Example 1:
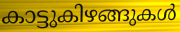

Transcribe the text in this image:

കാട്ടുകിഴങ്ങുകൾ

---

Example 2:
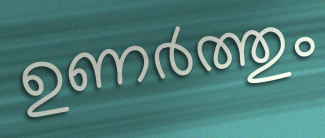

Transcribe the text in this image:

ഉണർത്തും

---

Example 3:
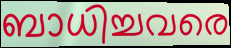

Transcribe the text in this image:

ബാധിച്ചവരെ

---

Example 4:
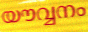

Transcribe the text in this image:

യൗവ്വനം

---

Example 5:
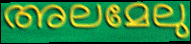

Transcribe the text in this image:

അലമേലു